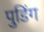
पुडिंग